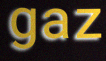
gaz